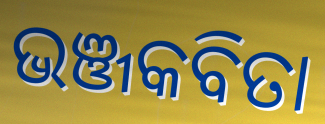
ଭଞ୍ଜକବିତା